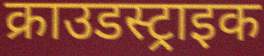
क्राउडस्ट्राइक